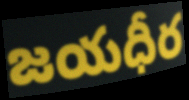
జయధీర